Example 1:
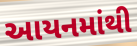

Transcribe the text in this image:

આયનમાંથી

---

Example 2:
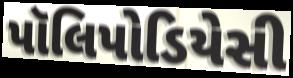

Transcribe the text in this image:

પૉલિપોડિયેસી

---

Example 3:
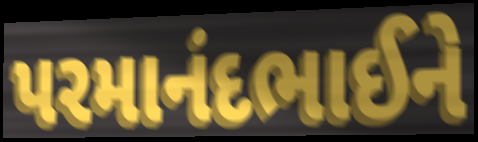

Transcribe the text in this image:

પરમાનંદભાઈને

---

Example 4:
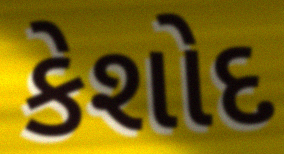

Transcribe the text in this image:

કેશોદ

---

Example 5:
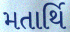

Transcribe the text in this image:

મતાર્થિ